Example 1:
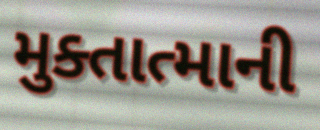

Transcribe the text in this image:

મુક્તાત્માની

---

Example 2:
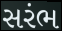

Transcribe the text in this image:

સરંભ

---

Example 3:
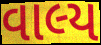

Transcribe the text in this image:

વાલ્ય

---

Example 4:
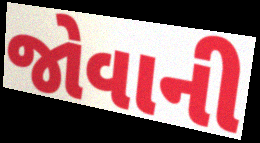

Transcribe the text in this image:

જોવાની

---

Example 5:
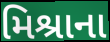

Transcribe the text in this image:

મિશ્રાના